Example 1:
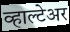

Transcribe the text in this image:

व्हाल्टेअर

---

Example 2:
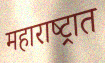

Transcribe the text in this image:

महाराष्‍ट्रात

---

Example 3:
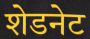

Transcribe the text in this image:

शेडनेट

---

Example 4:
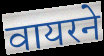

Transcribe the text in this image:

वायरने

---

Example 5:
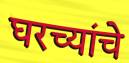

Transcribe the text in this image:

घरच्यांचे